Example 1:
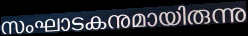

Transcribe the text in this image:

സംഘാടകനുമായിരുന്നു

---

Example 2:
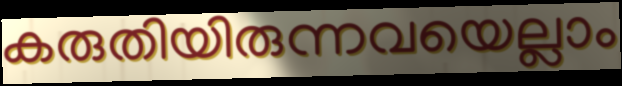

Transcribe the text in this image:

കരുതിയിരുന്നവയെല്ലാം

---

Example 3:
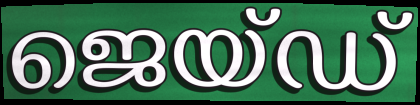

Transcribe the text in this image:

ജെയ്ഡ്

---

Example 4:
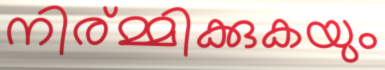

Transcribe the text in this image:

നിര്മ്മിക്കുകയും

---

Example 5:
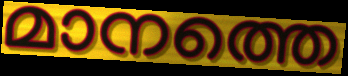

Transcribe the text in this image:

മാനത്തെ